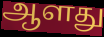
ஆளது